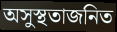
অসুস্থতাজনিত